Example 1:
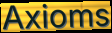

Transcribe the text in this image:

Axioms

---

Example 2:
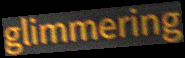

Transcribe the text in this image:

glimmering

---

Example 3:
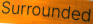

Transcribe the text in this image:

Surrounded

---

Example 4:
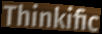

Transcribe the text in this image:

Thinkific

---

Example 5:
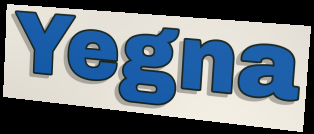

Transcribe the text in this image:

Yegna